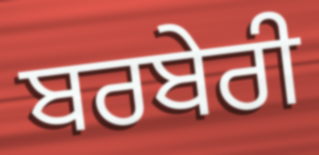
ਬਰਬੇਰੀ